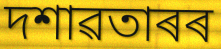
দশাৱতাৰৰ